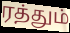
ரத்தும்